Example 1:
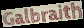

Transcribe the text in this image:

Galbraith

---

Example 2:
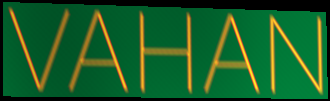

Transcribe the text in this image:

VAHAN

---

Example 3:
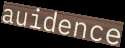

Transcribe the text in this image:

auidence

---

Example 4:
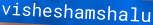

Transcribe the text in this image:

visheshamshalu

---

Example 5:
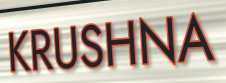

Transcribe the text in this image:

KRUSHNA